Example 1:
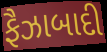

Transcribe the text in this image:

ફૈઝાબાદી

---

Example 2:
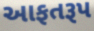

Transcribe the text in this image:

આફતરૂપ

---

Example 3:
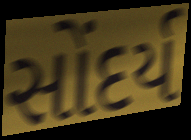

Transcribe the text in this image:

સોંદર્ય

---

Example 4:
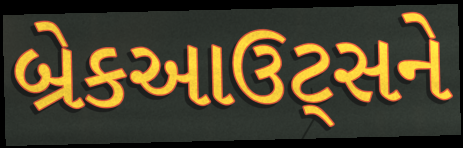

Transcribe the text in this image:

બ્રેકઆઉટ્સને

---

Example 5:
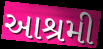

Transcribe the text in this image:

આશ્રમી